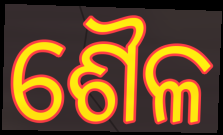
ଶୈଳ